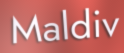
Maldiv